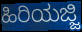
ಹಿರಿಯಜ್ಜಿ